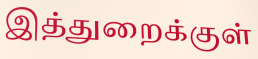
இத்துறைக்குள்